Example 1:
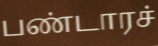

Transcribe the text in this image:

பண்டாரச்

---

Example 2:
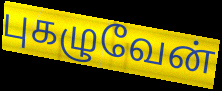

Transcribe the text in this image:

புகழுவேன்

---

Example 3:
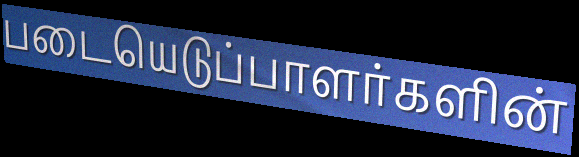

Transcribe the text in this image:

படையெடுப்பாளர்களின்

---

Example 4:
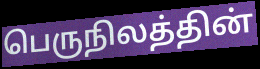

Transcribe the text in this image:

பெருநிலத்தின்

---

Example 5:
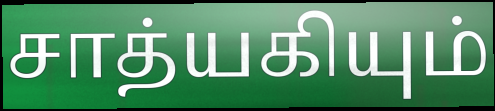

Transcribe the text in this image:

சாத்யகியும்